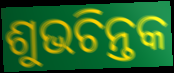
ଶୁଭଚିନ୍ତକ